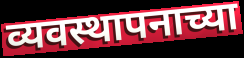
व्यवस्थापनाच्या